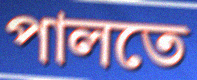
পালতে